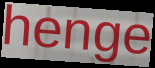
henge